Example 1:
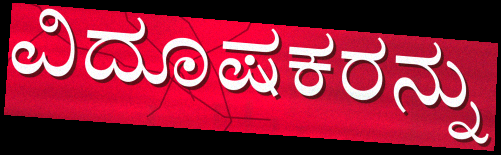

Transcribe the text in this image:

ವಿದೂಷಕರನ್ನು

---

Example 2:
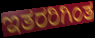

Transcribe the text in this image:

ಇತರರಿಗಿಂತ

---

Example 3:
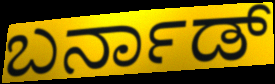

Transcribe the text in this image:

ಬರ್ನಾಡ್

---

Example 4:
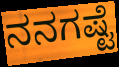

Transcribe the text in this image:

ನನಗಷ್ಟೆ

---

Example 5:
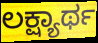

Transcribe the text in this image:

ಲಕ್ಷ್ಯಾರ್ಥ